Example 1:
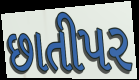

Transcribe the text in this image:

છાતીપર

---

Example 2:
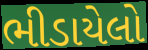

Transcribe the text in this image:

ભીડાયેલો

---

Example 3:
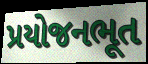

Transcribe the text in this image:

પ્રયોજનભૂત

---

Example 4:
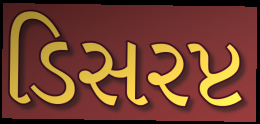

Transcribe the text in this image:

ડિસરપ્ટ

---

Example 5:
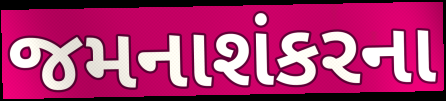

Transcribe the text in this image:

જમનાશંકરના